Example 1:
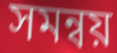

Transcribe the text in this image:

সমন্বয়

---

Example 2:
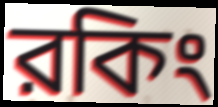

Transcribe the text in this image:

রকিং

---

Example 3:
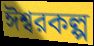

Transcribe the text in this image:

ঈশ্বরকল্প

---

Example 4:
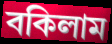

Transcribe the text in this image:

বকিলাম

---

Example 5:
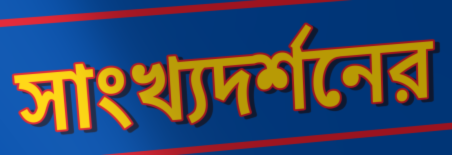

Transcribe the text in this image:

সাংখ্যদর্শনের